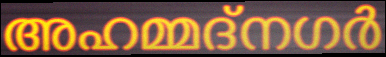
അഹമ്മദ്നഗർ